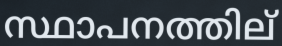
സ്ഥാപനത്തില്